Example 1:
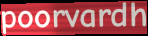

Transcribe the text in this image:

poorvardh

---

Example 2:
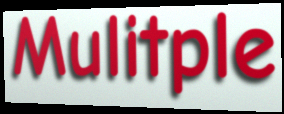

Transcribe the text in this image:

Mulitple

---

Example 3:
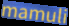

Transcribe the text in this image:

mamuli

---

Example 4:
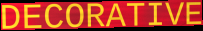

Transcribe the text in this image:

DECORATIVE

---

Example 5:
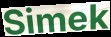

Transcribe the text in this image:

Simek